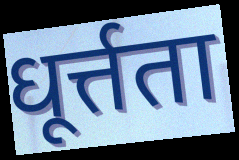
धूर्त्तता